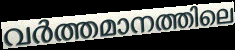
വർത്തമാനത്തിലെ